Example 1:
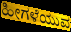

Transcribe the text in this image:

ಹೀಗಳೆಯುವ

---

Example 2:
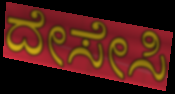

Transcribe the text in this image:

ದೇಸೇಸಿ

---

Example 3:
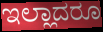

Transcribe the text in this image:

ಇಲ್ಲಾದರೂ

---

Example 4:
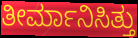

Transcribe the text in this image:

ತೀರ್ಮಾನಿಸಿತ್ತು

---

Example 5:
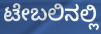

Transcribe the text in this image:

ಟೇಬಲಿನಲ್ಲಿ